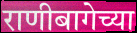
राणीबागेच्या